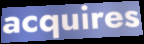
acquires